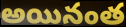
అయినంత